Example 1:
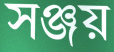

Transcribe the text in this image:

সঞ্জয়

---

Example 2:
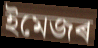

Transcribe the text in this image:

ইমেজৰ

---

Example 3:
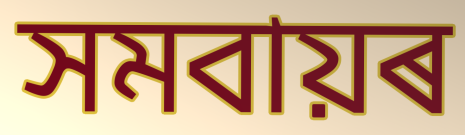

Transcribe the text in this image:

সমবায়ৰ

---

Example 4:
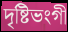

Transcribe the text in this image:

দৃষ্টিভংগী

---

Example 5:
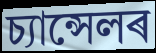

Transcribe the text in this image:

চ্যান্সেলৰ